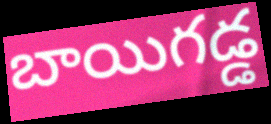
బాయిగడ్డ